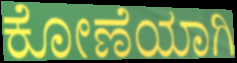
ಕೋಣೆಯಾಗಿ